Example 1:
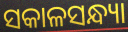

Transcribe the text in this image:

ସକାଳସନ୍ଧ୍ୟା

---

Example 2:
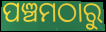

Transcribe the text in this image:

ପଞ୍ଚମଠାରୁ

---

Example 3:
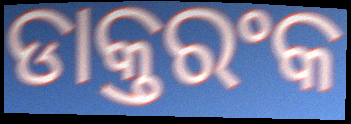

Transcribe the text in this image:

ଡାକ୍ତରଂକ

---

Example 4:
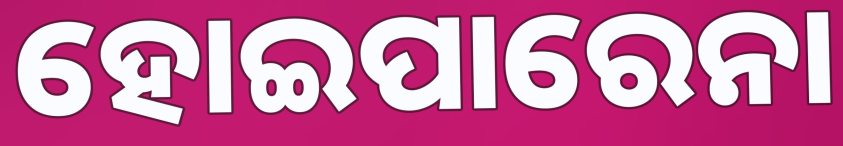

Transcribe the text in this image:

ହୋଇପାରେନା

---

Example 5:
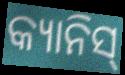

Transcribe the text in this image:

କ୍ୟାନିସ୍